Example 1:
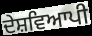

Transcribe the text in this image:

ਦੇਸ਼ਵਿਆਪੀ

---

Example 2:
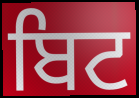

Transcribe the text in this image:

ਬਿਟ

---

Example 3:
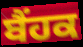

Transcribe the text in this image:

ਬੈਂਹਕ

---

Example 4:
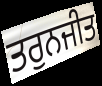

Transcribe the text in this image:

ਤਰੁਨਜੀਤ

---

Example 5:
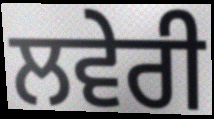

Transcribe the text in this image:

ਲਵੇਰੀ